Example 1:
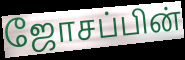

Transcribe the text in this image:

ஜோசப்பின்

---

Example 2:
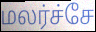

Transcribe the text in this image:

மலர்ச்சே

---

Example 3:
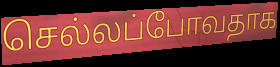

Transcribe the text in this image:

செல்லப்போவதாக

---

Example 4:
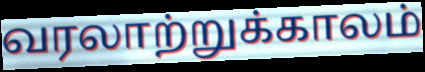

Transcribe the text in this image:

வரலாற்றுக்காலம்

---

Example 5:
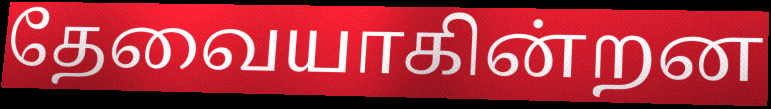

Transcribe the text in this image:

தேவையாகின்றன